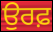
ਉਰਫ਼